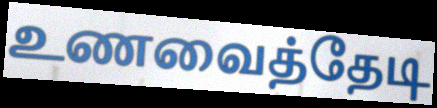
உணவைத்தேடி